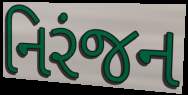
નિરંજન